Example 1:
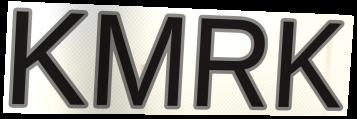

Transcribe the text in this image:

KMRK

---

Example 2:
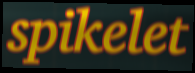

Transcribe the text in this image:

spikelet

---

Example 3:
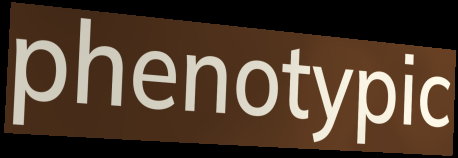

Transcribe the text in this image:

phenotypic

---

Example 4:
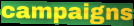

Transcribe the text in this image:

campaigns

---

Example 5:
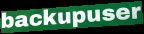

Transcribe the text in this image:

backupuser